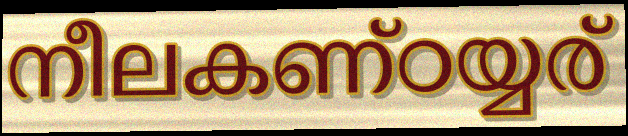
നീലകണ്ഠയ്യര്